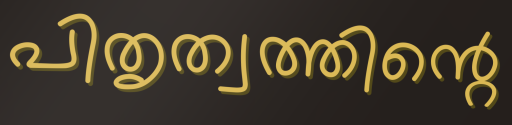
പിതൃത്വത്തിന്റെ